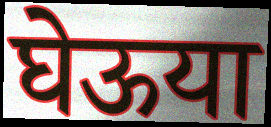
घेऊया